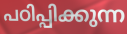
പഠിപ്പിക്കുന്ന